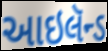
આઇલૅન્ડ